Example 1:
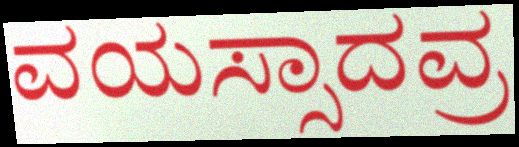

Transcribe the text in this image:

ವಯಸ್ಸಾದವ್ರ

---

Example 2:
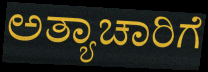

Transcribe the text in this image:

ಅತ್ಯಾಚಾರಿಗೆ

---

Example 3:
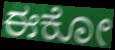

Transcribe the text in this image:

ಈಕೋ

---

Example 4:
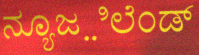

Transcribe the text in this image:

ನ್ಯೂಜ಼ಿಲೆಂಡ್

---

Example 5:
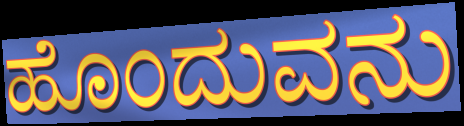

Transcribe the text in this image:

ಹೊಂದುವನು